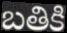
బతికి